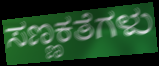
ಸಣ್ಣಕತೆಗಳು